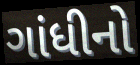
ગાંધીનો